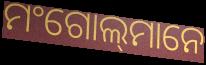
ମଂଗୋଲ୍‍ମାନେ